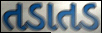
તડાતડ